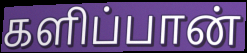
களிப்பான்